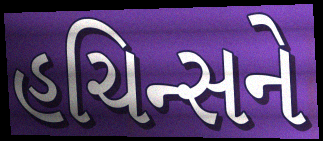
હચિન્સને